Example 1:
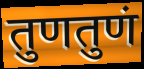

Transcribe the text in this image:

तुणतुणं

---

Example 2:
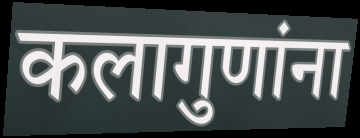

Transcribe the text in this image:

कलागुणांना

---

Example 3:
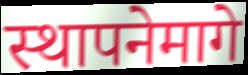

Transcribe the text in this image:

स्थापनेमागे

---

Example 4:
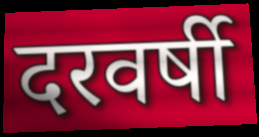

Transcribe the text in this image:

दरवर्षी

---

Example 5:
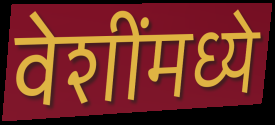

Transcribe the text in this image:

वेशींमध्ये